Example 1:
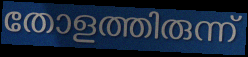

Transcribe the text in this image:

തോളത്തിരുന്ന്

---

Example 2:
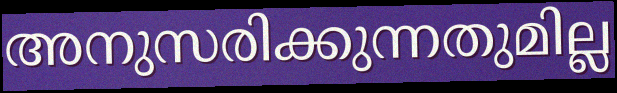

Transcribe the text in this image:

അനുസരിക്കുന്നതുമില്ല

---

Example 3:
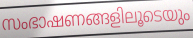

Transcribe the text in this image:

സംഭാഷണങ്ങളിലൂടെയും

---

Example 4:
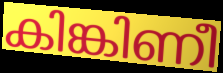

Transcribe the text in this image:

കിങ്കിണീ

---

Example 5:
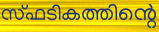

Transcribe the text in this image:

സ്ഫടികത്തിന്റെ